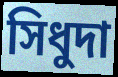
সিধুদা